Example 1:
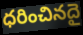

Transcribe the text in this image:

ధరించినదై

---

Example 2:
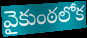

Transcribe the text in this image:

వైకుంఠలోక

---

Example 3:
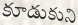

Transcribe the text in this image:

కూడుకుని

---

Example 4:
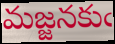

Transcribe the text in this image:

మజ్జనకుఁ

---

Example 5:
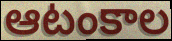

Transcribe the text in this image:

ఆటంకాల